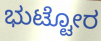
ಭುಟ್ಟೋರ